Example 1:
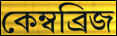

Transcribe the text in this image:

কেম্বব্ৰিজ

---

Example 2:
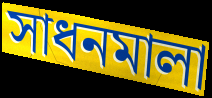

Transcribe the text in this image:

সাধনমালা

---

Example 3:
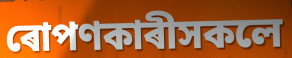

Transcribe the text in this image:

ৰোপণকাৰীসকলে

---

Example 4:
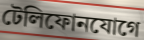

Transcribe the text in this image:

টেলিফোনযোগে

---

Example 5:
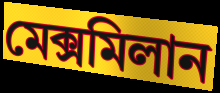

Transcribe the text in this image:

মেক্সমিলান